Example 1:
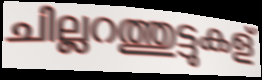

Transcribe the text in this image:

ചില്ലറത്തുട്ടുകള്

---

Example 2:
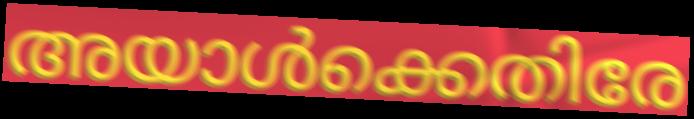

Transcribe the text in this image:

അയാൾക്കെതിരേ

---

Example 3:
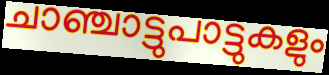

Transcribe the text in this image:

ചാഞ്ചാട്ടുപാട്ടുകളും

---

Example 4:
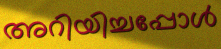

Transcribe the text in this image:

അറിയിച്ചപ്പോൾ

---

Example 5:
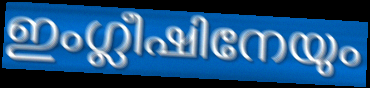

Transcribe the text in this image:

ഇംഗ്ലീഷിനേയും